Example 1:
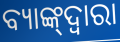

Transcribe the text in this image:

ବ୍ୟାଙ୍କ୍‌ଦ୍ୱାରା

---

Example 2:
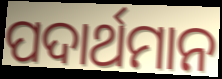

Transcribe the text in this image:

ପଦାର୍ଥମାନ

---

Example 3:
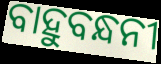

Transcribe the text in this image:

ବାହୁବନ୍ଧନୀ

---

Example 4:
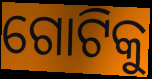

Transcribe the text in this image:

ଗୋଟିକୁ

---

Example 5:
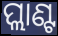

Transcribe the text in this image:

ପ୍ଲାଣ୍ଟ